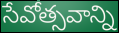
సేవోత్సవాన్ని